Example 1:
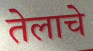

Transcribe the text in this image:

तेलाचे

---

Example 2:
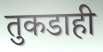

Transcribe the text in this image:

तुकडाही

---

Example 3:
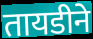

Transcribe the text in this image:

तायडीने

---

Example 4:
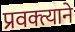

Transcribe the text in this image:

प्रवक्‍त्याने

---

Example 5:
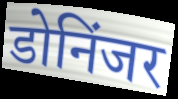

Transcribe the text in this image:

डोनिंजर